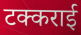
टक्कराई